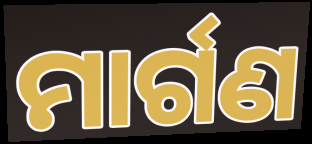
ମାର୍ଗଣ